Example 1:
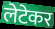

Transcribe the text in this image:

लेटेकर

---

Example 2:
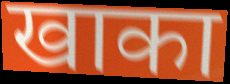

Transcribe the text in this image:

खाका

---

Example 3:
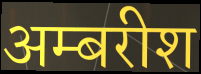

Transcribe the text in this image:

अम्बरीश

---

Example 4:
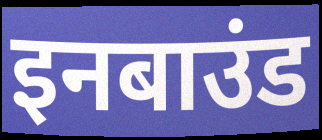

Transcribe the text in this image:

इनबाउंड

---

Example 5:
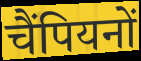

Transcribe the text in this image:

चैंपियनों